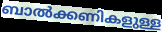
ബാൽക്കണികളുള്ള